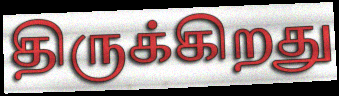
திருக்கிறது